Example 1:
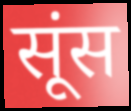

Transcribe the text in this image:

सूंस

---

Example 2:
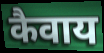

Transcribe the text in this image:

कैवाय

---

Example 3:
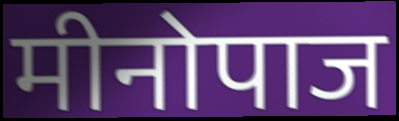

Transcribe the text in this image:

मीनोपाज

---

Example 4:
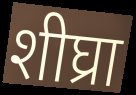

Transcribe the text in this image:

शीघ्रा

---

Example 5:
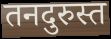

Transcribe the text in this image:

तनदुरुस्त